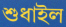
শুধাইল